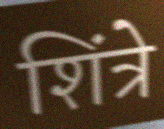
शिंत्रे